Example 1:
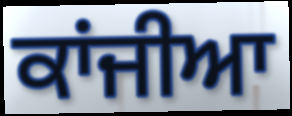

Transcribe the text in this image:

ਕਾਂਜੀਆ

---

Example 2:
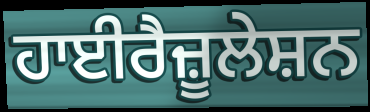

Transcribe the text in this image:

ਹਾਈਰੈਜ਼ੂਲੇਸ਼ਨ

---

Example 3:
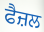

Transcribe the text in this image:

ਫੈਜ਼ਲ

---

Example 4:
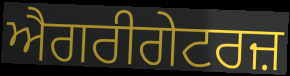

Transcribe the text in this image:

ਐਗਰੀਗੇਟਰਜ਼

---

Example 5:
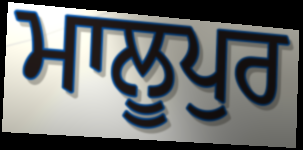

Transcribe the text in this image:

ਮਾਲੂਪੁਰ